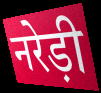
नरेड़ी